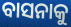
ବାସନାକୁ